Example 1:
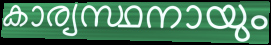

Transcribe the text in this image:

കാര്യസ്ഥനായും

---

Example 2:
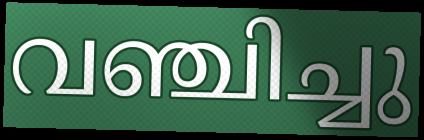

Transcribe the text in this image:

വഞ്ചിച്ചു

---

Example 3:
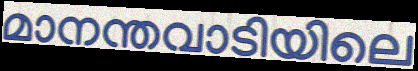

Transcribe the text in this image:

മാനന്തവാടിയിലെ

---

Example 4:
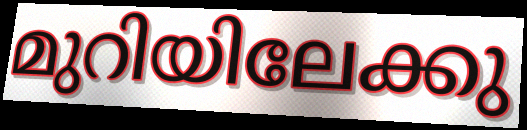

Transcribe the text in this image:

മുറിയിലേക്കു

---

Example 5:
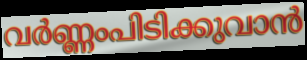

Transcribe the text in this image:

വർണ്ണംപിടിക്കുവാൻ